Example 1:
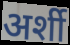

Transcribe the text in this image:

अर्शी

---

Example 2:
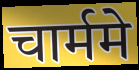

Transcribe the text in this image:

चार्ममे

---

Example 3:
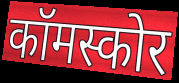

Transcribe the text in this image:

कॉमस्कोर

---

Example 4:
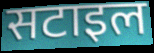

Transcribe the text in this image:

सटाइल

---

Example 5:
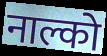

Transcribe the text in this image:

नाल्को